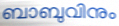
ബാബുവിനും